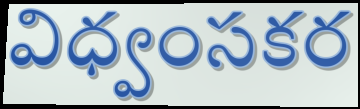
విధ్వంసకర